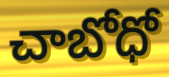
చాబోధో